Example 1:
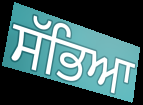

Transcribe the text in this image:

ਸੱਭਿਆ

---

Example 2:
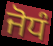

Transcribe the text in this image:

ਜੋਧੰ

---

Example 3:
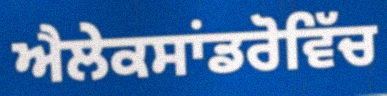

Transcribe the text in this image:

ਐਲੇਕਸਾਂਡਰੋਵਿੱਚ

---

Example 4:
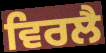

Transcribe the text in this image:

ਵਿਰਲੈ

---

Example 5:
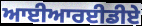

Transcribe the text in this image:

ਆਈਆਰਈਡੀਏ